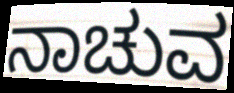
ನಾಚುವ